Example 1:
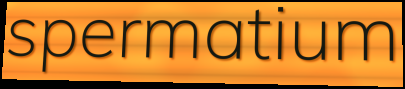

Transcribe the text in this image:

spermatium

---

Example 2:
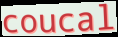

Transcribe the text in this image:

coucal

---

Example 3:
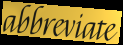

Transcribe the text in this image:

abbreviate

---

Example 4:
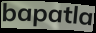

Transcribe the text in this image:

bapatla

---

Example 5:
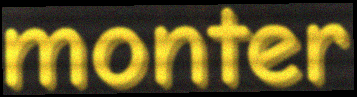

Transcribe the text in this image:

monter